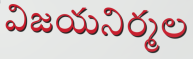
విజయనిర్మల